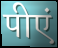
पीएं